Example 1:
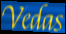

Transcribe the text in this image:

Vedas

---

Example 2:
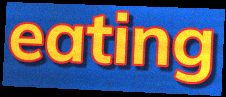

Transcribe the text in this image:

eating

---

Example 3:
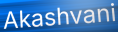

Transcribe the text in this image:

Akashvani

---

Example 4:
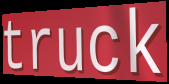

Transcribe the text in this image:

truck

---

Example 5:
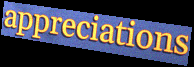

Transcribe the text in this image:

appreciations